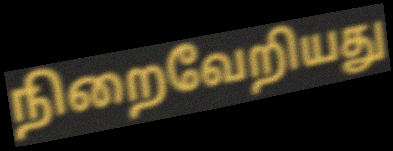
நிறைவேறியது